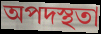
অপদস্থতা